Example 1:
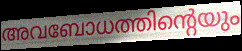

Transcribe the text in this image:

അവബോധത്തിന്റെയും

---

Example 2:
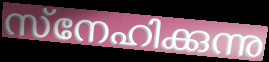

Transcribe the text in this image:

സ്‌നേഹിക്കുന്നു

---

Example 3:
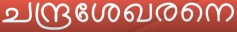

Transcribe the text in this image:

ചന്ദ്രശേഖരനെ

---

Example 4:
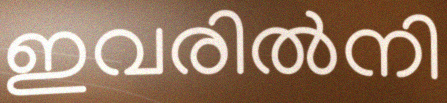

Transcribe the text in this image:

ഇവരിൽനി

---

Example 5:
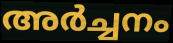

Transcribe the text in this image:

അർച്ചനം